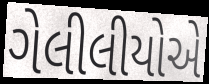
ગેલીલીયોએ